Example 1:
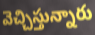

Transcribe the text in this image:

వెచ్చిస్తున్నారు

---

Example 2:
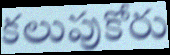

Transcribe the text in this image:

కలుపుకోరు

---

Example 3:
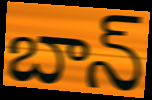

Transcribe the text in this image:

బాన్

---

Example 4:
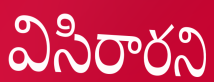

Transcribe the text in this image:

విసిరారని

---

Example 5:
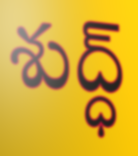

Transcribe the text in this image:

శుద్ధ్